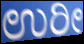
ಉರೀ